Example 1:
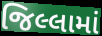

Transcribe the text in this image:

જિલ્લામાં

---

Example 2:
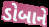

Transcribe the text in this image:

ડોબાને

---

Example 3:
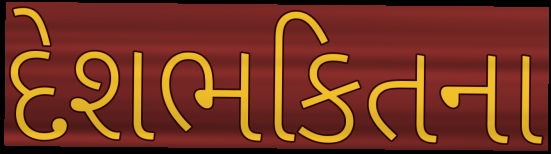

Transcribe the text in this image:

દેશભકિતના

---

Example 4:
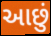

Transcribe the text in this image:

આછું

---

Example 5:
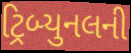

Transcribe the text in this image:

ટ્રિબ્યુનલની